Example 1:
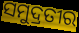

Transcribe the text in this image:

ସମୁଦ୍ରତୀର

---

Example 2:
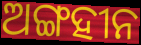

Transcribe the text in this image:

ଅଙ୍ଗହୀନ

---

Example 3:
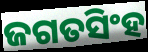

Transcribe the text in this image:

ଜଗତସିଂହ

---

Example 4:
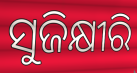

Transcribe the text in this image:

ସୁଜିକ୍ଷୀରି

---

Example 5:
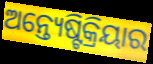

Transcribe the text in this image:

ଅନ୍ତ୍ୟେଷ୍ଟିକ୍ରିୟାର